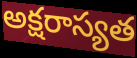
అక్షరాస్యత